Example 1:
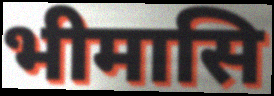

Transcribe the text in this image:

भीमासि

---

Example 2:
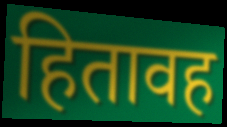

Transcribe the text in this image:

हितावह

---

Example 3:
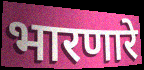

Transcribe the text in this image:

भारणारे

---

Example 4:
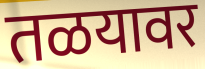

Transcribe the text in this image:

तळयावर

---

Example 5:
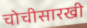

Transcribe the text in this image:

चोचीसारखी